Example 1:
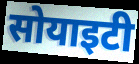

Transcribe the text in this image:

सोयाइटी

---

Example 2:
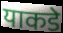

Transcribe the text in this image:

याकडे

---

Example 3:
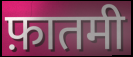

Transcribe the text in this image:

फ़ातमी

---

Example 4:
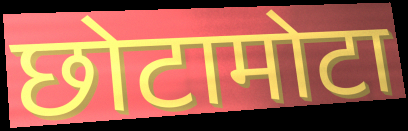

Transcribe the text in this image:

छोटामोटा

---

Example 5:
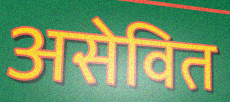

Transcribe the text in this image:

असेवित